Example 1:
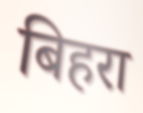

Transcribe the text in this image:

बिहरा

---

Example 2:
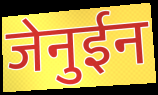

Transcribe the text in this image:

जेनुईन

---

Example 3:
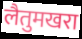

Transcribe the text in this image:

लैतुमखरा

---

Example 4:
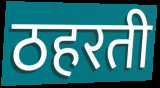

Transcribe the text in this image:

ठहरती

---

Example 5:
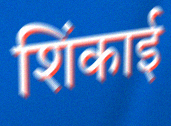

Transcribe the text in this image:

शिंकाई